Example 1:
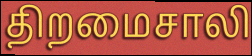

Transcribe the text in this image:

திறமைசாலி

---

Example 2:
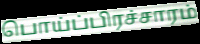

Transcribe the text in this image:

பொய்ப்பிரச்சாரம்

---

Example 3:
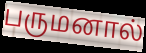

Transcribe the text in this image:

பருமனால்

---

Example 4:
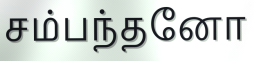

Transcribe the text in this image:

சம்பந்தனோ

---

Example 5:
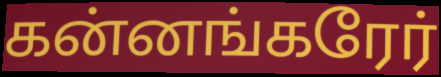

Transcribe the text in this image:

கன்னங்கரேர்